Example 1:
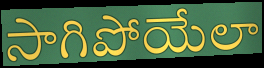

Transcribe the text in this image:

సాగిపోయేలా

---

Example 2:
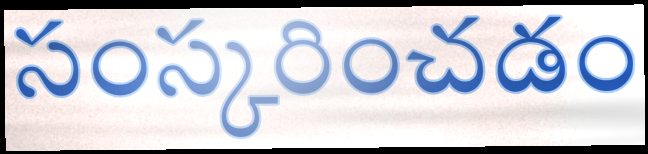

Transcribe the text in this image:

సంస్కరించడం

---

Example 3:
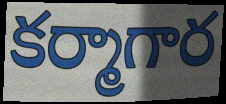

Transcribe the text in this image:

కర్మాగార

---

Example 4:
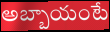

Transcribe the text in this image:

అబ్బాయంటే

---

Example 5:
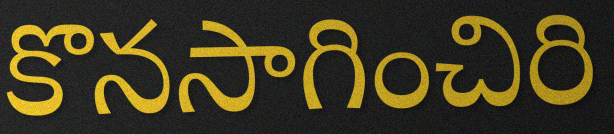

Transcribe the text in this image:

కొనసాగించిరి